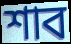
শাব